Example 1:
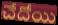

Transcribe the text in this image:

చేదోయి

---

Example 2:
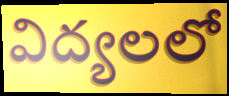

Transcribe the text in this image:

విద్యలలో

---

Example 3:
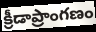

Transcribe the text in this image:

క్రీడాప్రాంగణం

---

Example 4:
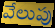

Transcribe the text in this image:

వేలుపు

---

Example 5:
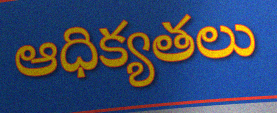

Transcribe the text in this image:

ఆధిక్యతలు